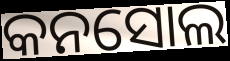
କନସୋଲ